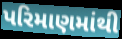
પરિમાણમાંથી